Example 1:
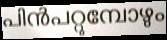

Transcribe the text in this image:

പിൻപറ്റുമ്പോഴും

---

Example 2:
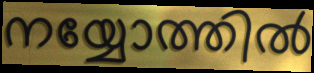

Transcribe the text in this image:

നയ്യോത്തിൽ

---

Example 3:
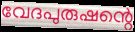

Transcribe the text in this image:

വേദപുരുഷന്റെ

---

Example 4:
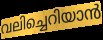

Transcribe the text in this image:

വലിച്ചെറിയാൻ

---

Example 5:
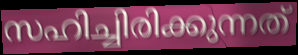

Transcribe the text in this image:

സഹിച്ചിരിക്കുന്നത്